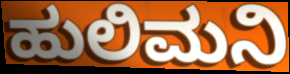
ಹುಲಿಮನಿ